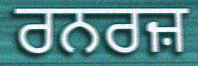
ਰਨਰਜ਼